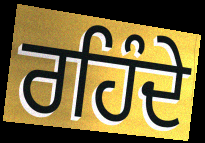
ਰਹਿੰਦੇ